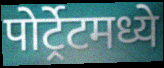
पोर्ट्रेटमध्ये